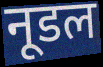
नूडल